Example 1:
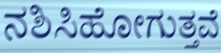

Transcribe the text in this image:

ನಶಿಸಿಹೋಗುತ್ತವೆ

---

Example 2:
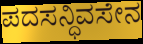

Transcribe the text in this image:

ಪದಸನ್ಧಿವಸೇನ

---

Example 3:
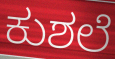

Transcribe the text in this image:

ಕುಶಲೆ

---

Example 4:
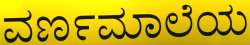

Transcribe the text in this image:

ವರ್ಣಮಾಲೆಯ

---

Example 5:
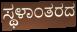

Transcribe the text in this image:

ಸ್ಥಳಾಂತರದ